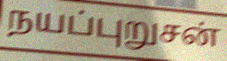
நயப்புறுசன்